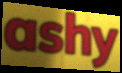
ashy